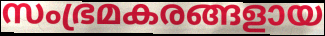
സംഭ്രമകരങ്ങളായ